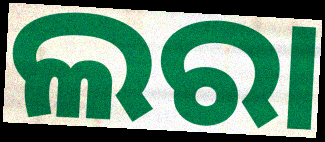
ଲରା